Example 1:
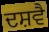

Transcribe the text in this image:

ਦਸ਼ਵੈ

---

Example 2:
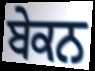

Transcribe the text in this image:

ਬੇਕਨ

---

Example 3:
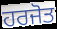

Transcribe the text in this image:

ਹਰਜੋਤ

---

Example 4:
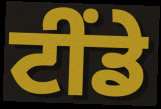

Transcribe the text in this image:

ਟੀਂਡੇ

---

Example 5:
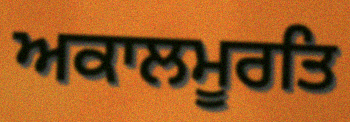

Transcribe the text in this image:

ਅਕਾਲਮੂਰਤਿ